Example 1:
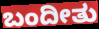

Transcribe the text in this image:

ಬಂದೀತು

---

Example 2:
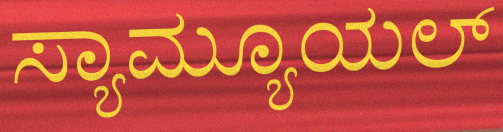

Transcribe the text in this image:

ಸ್ಯಾಮ್ಯೂಯಲ್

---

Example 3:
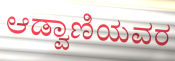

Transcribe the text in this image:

ಆಡ್ವಾಣಿಯವರ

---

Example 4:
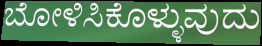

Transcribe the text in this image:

ಬೋಳಿಸಿಕೊಳ್ಳುವುದು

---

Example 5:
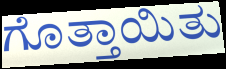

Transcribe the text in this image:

ಗೊತ್ತಾಯಿತು